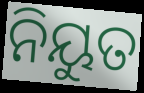
ନିୟୁତ